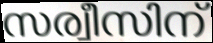
സര്വീസിന്